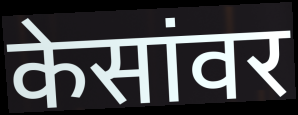
केसांवर